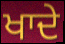
ਖਾਦੇ